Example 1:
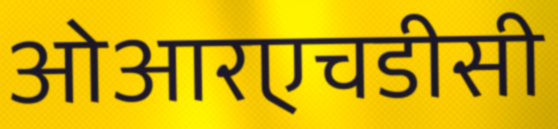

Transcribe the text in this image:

ओआरएचडीसी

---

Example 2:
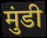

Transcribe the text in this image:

मुंडी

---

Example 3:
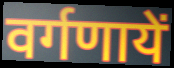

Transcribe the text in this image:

वर्गणायें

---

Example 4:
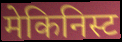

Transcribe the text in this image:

मेकिनिस्ट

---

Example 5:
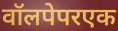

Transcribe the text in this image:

वॉलपेपरएक